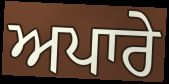
ਅਪਾਰੇ